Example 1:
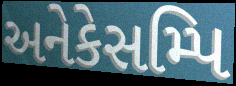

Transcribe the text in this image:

અનેકેસમ્પિ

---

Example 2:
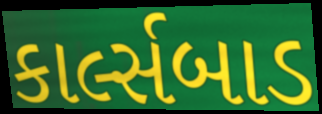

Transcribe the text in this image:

કાર્લ્સબાડ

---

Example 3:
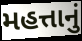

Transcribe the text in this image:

મહત્તાનું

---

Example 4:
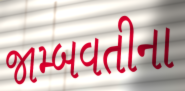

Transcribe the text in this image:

જામ્બવતીના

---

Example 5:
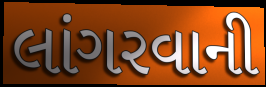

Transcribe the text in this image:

લાંગરવાની